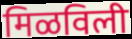
मिळविली